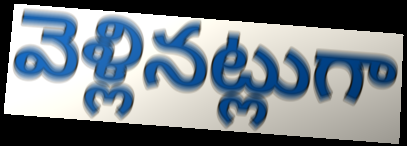
వెళ్లినట్లుగా